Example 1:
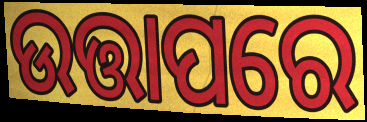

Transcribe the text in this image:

ଉତ୍ତାପରେ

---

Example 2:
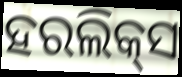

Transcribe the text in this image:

ହରଲିକ୍‍ସ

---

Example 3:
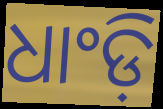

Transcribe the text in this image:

ଧାଂଡ଼ି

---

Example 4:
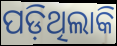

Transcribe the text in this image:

ପଡ଼ିଥିଲାକି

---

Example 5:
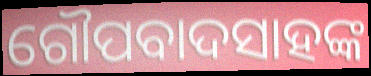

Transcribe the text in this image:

ଗୌପବାଦସାହଙ୍କ